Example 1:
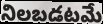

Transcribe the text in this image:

నిలబడటమే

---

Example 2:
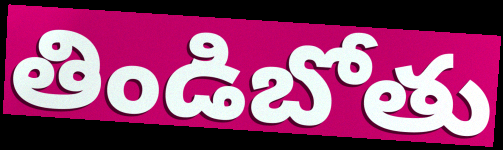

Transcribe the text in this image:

తిండిబోతు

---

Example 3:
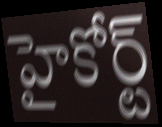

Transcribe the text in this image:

హైకోర్ట్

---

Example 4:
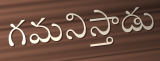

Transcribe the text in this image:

గమనిస్తాడు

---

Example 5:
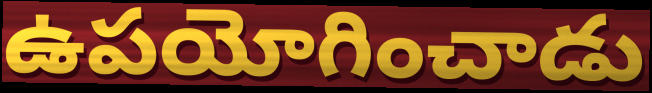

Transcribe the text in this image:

ఉపయోగించాడు